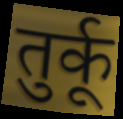
तुर्कू